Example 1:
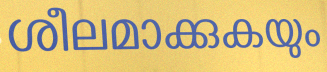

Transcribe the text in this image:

ശീലമാക്കുകയും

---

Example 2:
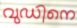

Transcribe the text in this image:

വുഡിനെ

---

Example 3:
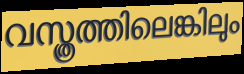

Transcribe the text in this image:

വസ്ത്രത്തിലെങ്കിലും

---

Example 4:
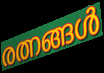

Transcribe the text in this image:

രത്നങ്ങൾ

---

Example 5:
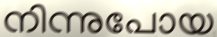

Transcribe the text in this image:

നിന്നുപോയ